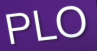
PLO